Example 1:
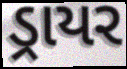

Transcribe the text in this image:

ડ્રાયર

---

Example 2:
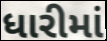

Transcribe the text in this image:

ધારીમાં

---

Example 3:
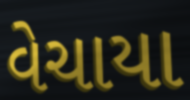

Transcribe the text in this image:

વેચાયા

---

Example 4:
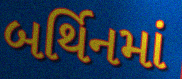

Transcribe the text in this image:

બર્થિનમાં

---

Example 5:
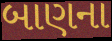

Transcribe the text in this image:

બાણના